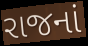
રાજનાં